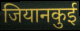
जियानकुई